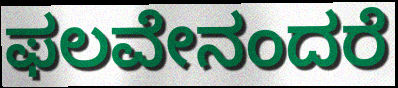
ಫಲವೇನಂದರೆ